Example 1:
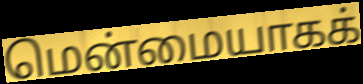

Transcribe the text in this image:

மென்மையாகக்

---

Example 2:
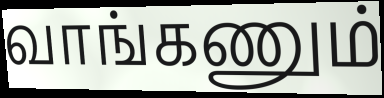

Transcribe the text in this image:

வாங்கணும்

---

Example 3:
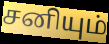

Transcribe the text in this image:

சனியும்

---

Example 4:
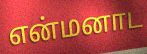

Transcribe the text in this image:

என்மனாட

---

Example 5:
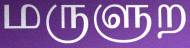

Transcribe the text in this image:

மருளுற